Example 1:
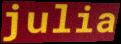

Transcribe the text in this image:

julia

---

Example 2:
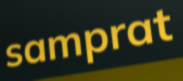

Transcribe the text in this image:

samprat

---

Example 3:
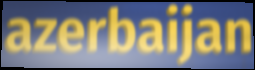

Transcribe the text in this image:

azerbaijan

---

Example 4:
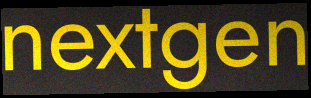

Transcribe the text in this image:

nextgen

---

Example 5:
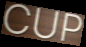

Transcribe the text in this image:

CUP